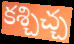
కశ్చిచ్చ